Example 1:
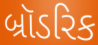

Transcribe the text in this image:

બ્રૉડરિક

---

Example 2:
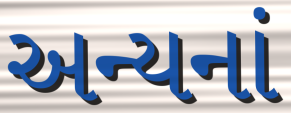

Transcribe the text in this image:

અન્યનાં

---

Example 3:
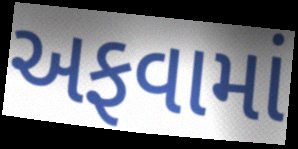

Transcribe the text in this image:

અફવામાં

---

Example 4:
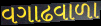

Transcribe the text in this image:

વગાઢવાળા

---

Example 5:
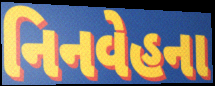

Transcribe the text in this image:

નિનવેહના